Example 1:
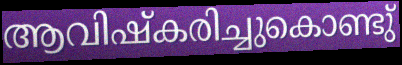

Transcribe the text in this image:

ആവിഷ്കരിച്ചുകൊണ്ടു്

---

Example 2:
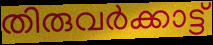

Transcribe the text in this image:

തിരുവർക്കാട്ട്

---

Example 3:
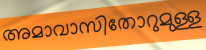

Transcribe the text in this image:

അമാവാസിതോറുമുള്ള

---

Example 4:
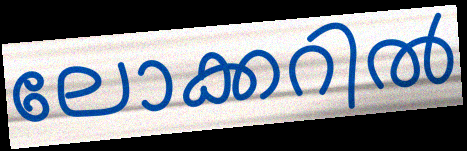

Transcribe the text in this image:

ലോക്കറിൽ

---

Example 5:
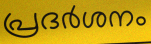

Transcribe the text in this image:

പ്രദർശനം